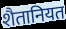
शैतानियत